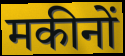
मकीनों